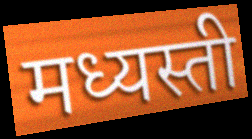
मध्यस्ती